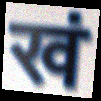
खं